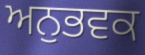
ਅਨੁਭਵਕ